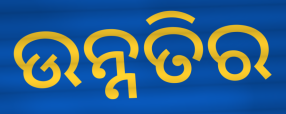
ଉନ୍ନତିର